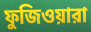
ফুজিওয়ারা